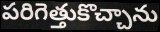
పరిగెత్తుకొచ్చాను